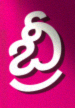
బ్రీ